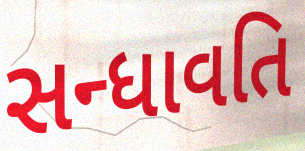
સન્ધાવતિ